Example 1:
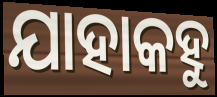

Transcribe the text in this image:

ଯାହାକହୁ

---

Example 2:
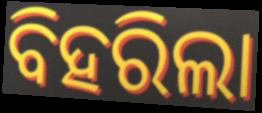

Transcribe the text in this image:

ବିହରିଲା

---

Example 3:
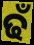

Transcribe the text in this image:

ଢଁ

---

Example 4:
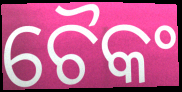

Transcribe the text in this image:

ଚୈକଂ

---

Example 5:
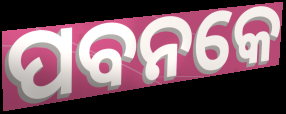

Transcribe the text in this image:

ପବନକେ